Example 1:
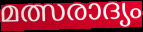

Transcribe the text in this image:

മത്സരാദ്യം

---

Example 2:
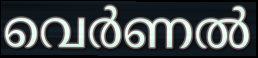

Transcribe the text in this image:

വെർണൽ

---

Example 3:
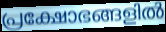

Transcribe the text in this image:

പ്രക്ഷോഭങ്ങളിൽ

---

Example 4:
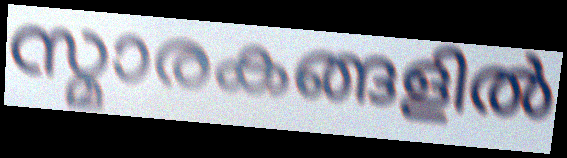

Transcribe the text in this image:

സ്മാരകങ്ങളിൽ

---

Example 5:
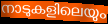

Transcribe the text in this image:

നാടുകളിലെയും